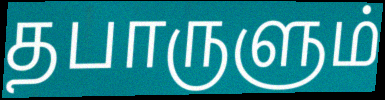
தபாருளும்